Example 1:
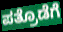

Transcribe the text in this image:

ಪತ್ರೊಡೆಗೆ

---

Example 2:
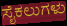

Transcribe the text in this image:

ಸೈಕಲುಗಳು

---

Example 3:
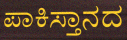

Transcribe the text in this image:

ಪಾಕಿಸ್ತಾನದ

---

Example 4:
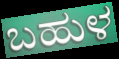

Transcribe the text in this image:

ಬಹುಳ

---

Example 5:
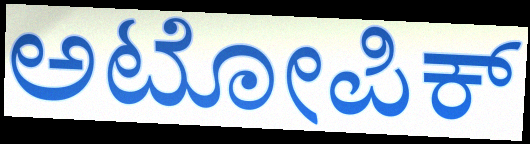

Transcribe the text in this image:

ಅಟೋಪಿಕ್